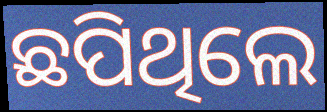
ଛପିଥିଲେ